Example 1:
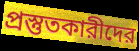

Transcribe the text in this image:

প্রস্তুতকারীদের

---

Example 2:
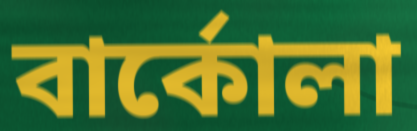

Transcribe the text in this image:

বার্কোলা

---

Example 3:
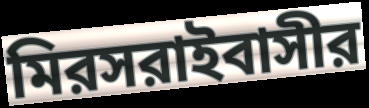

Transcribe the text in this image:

মিরসরাইবাসীর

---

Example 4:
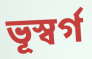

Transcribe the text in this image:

ভূস্বর্গ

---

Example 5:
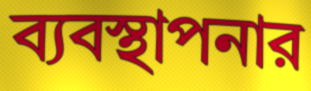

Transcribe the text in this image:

ব্যবস্থাপনার